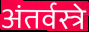
अंतर्वस्त्रे